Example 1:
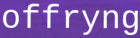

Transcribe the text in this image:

offryng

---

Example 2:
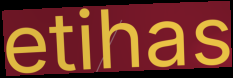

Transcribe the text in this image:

etihas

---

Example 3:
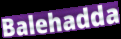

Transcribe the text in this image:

Balehadda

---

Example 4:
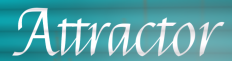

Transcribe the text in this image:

Attractor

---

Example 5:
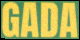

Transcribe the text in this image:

GADA